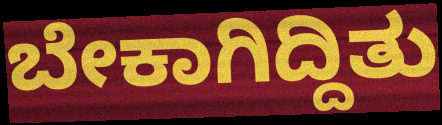
ಬೇಕಾಗಿದ್ದಿತು